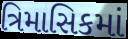
ત્રિમાસિકમાં